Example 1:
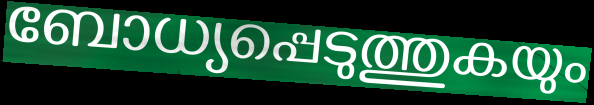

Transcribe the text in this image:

ബോധ്യപ്പെടുത്തുകയും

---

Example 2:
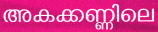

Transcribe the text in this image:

അകക്കണ്ണിലെ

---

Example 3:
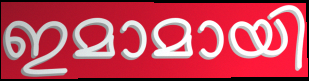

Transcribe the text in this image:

ഇമാമായി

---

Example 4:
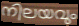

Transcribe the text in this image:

നിലയവും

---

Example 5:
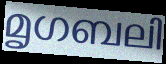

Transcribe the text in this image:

മൃഗബലി